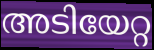
അടിയേറ്റ